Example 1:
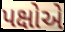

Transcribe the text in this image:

પક્ષોએ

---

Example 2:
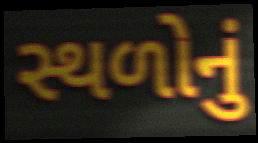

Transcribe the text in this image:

સ્થળોનું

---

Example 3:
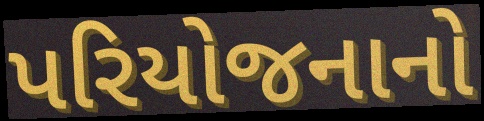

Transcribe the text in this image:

પરિયોજનાનો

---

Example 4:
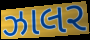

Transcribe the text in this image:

ઝાલર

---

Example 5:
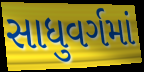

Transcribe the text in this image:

સાધુવર્ગમાં